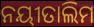
ନୟୀତାଲିମ